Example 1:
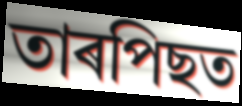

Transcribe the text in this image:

তাৰপিছত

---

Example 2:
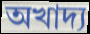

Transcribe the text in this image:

অখাদ্য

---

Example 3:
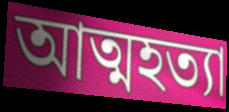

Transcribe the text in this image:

আত্মহত্যা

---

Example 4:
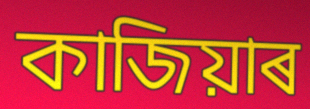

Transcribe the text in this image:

কাজিয়াৰ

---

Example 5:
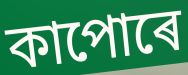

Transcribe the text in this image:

কাপোৰে